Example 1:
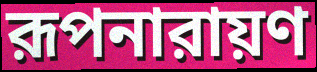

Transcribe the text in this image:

রূপনারায়ণ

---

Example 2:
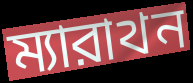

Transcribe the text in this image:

ম্যারাথন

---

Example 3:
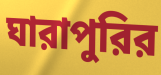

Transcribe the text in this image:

ঘারাপুরির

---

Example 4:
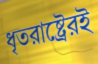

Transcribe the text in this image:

ধৃতরাষ্ট্রেরই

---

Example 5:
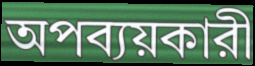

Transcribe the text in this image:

অপব্যয়কারী